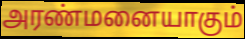
அரண்மனையாகும்